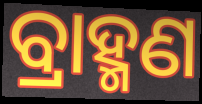
ବ୍ରାହ୍ମଣ